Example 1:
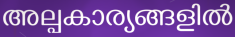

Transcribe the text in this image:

അല്പകാര്യങ്ങളിൽ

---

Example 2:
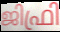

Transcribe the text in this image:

ജിഫ്രി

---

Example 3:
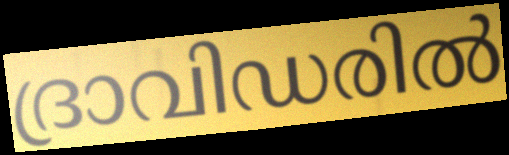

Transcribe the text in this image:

ദ്രാവിഡരിൽ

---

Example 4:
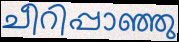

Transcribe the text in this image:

ചീറിപ്പാഞ്ഞു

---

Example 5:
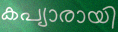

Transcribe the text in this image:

കപ്യാരായി